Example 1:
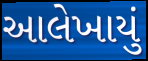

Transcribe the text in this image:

આલેખાયું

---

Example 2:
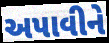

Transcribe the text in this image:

અપાવીને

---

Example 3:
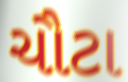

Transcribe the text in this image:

ચૌટા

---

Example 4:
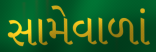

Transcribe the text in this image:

સામેવાળાં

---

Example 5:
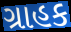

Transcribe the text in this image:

ગ્રાહક